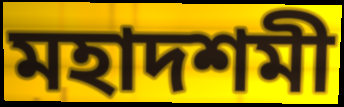
মহাদশমী